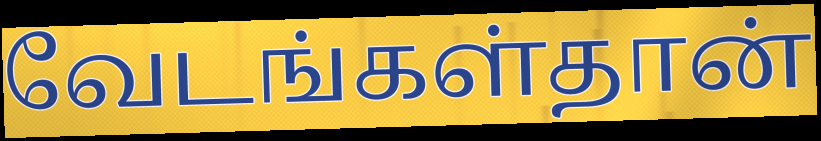
வேடங்கள்தான்